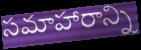
సమాహారాన్ని